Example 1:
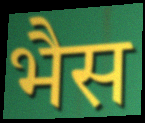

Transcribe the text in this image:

भैस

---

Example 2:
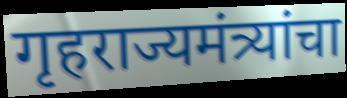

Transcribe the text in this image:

गृहराज्यमंत्र्यांचा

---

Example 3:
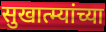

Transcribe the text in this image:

सुखात्म्यांच्या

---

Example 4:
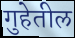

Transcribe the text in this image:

गुहेतील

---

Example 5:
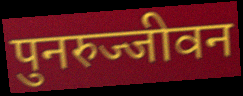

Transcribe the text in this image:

पुनरुज्‍जीवन